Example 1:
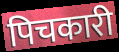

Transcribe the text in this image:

पिचकारी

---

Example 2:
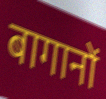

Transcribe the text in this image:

बागानों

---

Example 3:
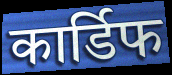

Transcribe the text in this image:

कार्डिफ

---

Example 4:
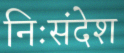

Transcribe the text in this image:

निःसंदेश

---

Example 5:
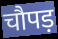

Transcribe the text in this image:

चौपड़